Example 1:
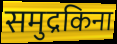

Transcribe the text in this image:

समुद्रकिना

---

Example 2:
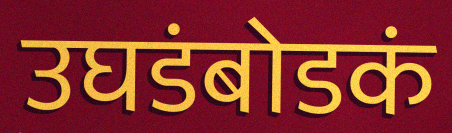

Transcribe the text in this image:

उघडंबोडकं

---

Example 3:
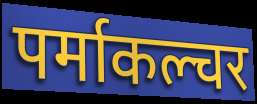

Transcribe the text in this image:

पर्माकल्चर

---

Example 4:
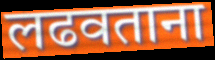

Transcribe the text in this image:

लढवताना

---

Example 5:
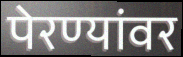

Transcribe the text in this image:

पेरण्यांवर